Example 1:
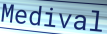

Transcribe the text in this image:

Medival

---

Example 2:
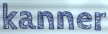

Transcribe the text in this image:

kanner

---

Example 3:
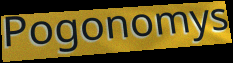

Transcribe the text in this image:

Pogonomys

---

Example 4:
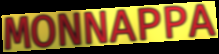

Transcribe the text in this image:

MONNAPPA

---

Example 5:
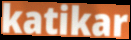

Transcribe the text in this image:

katikar